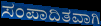
ಸಂಪಾದಿತವಾಗಿ